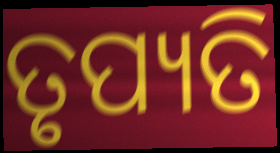
ତୃପ୍ୟତି